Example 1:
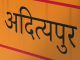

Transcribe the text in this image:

अदित्यपुर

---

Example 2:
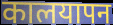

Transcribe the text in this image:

कालयापन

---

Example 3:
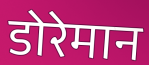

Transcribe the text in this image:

डोरेमान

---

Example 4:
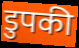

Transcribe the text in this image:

डुपकी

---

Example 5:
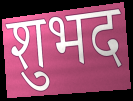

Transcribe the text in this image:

शुभद